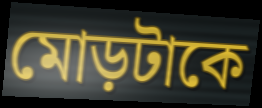
মোড়টাকে